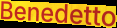
Benedetto